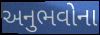
અનુભવોના